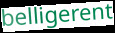
belligerent